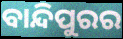
ବାନ୍ଦିପୁରର